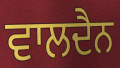
ਵਾਲਦੈਨ